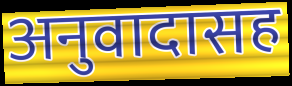
अनुवादासह